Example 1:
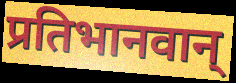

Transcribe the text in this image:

प्रतिभानवान्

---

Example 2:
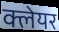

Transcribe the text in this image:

क्लेयर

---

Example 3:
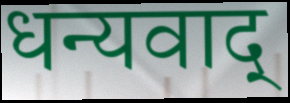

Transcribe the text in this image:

धन्यवाद्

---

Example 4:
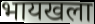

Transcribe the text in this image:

भायखला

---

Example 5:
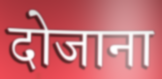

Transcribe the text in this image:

दोजाना